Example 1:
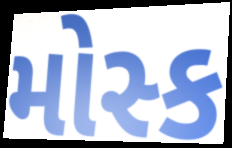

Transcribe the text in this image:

મોસ્ક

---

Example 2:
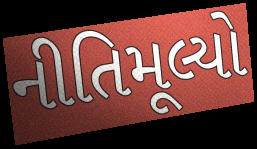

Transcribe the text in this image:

નીતિમૂલ્યો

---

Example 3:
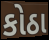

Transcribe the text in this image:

કોઠા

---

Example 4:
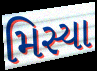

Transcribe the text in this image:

મિસ્યા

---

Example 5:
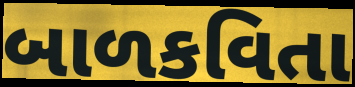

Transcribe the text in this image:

બાળકવિતા